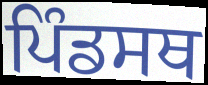
ਪਿੰਡਸਥ